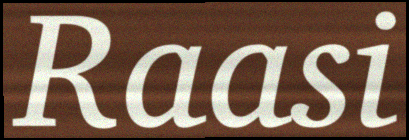
Raasi